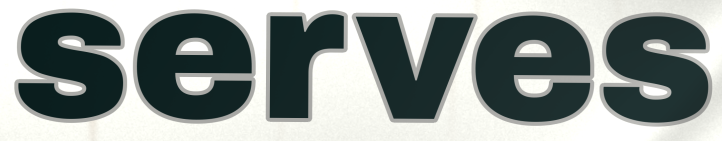
serves